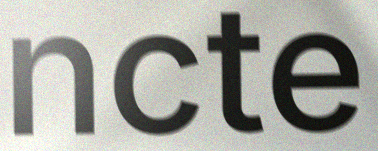
ncte